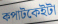
কপাটকেইটা